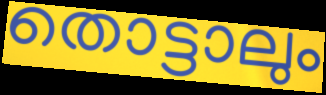
തൊട്ടാലും